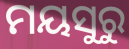
ମୟସୁରୁ